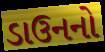
ડાઉનનો